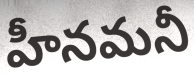
హీనమనీ